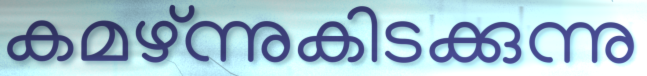
കമഴ്ന്നുകിടക്കുന്നു